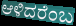
ಆಳಿದರೆಂಬ